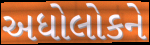
અધોલોકને